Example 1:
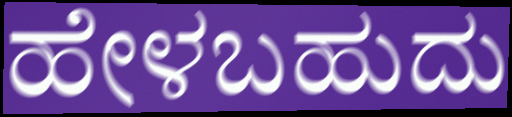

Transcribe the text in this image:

ಹೇಳಬಹುದು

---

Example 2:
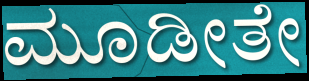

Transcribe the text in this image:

ಮೂಡೀತೇ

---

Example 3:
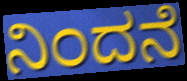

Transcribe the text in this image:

ನಿಂದನೆ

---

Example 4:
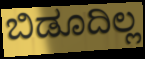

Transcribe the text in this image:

ಬಿಡೂದಿಲ್ಲ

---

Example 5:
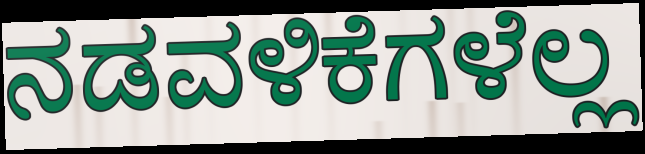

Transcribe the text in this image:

ನಡವಳಿಕೆಗಳೆಲ್ಲ